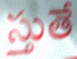
స్తుతే